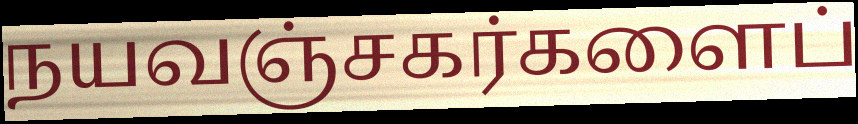
நயவஞ்சகர்களைப்